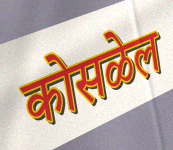
कोसळेल